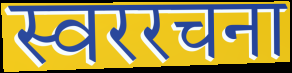
स्वररचना